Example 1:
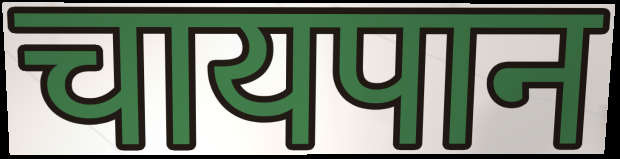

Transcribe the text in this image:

चायपान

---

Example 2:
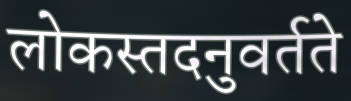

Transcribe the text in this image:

लोकस्तदनुवर्तते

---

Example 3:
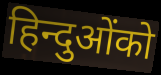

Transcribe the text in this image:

हिन्दुओंको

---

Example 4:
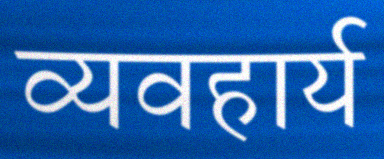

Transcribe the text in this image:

व्यवहार्य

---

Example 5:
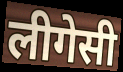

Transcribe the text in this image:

लीगेसी